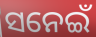
ସନେଇଁ